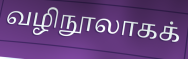
வழிநூலாகக்